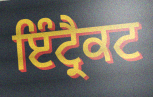
ਇੰਟ੍ਰੈਕਟ